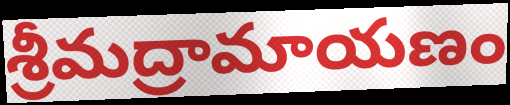
శ్రీమద్రామాయణం